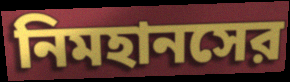
নিমহানসের